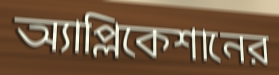
অ্যাপ্লিকেশানের